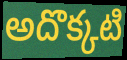
అదొక్కటి